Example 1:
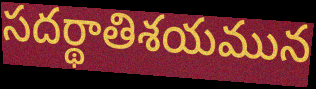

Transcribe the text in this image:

సదర్థాతిశయమున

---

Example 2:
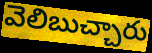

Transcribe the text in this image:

వెలిబుచ్చారు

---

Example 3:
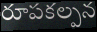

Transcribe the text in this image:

రూపకల్పన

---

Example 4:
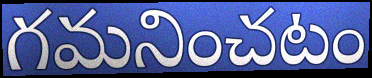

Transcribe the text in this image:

గమనించటం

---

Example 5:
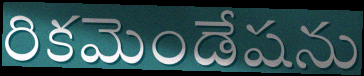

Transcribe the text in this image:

రికమెండేషను